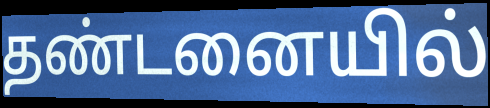
தண்டனையில்